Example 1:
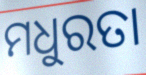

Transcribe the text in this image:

ମଧୁରତା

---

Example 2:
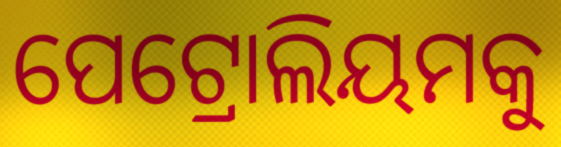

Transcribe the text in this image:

ପେଟ୍ରୋଲିୟମକୁ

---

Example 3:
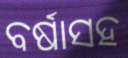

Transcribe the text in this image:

ବର୍ଷାସହ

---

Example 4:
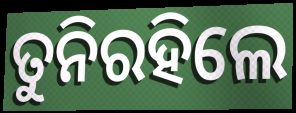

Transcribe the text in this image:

ତୁନିରହିଲେ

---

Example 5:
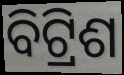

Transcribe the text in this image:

ବିଟ୍ରିଶ